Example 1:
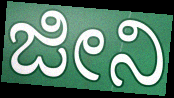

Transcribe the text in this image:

ಜೀನಿ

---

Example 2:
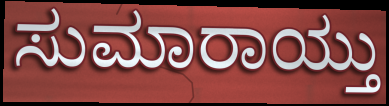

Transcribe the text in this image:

ಸುಮಾರಾಯ್ತು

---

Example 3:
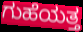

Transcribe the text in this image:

ಗುಹೆಯತ್ತ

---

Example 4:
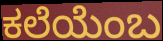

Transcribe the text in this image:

ಕಲೆಯೆಂಬ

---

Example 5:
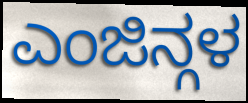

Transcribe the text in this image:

ಎಂಜಿನ್ಗಳ